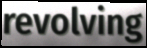
revolving